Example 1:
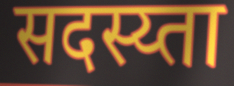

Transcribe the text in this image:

सदस्य्ता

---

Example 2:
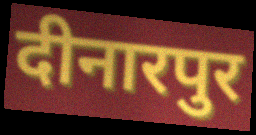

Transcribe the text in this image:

दीनारपुर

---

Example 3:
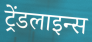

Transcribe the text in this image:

ट्रेंडलाइन्स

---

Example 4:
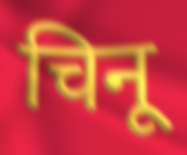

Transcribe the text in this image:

चिनू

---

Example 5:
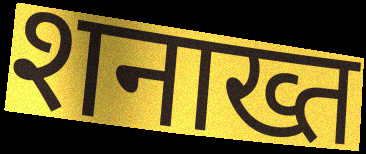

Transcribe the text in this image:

शनाख्त